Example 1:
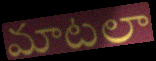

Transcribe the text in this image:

మాటలా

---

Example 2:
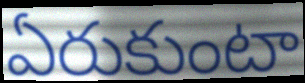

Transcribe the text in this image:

ఏరుకుంటా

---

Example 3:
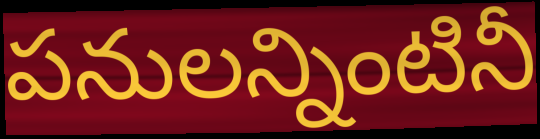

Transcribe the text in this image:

పనులన్నింటినీ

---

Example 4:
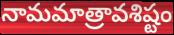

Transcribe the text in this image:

నామమాత్రావశిష్టం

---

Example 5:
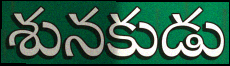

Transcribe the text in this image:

శునకుడు